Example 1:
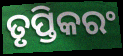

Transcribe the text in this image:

ତୃପ୍ତିକରଂ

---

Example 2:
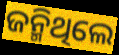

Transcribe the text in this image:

ଜନ୍ମିଥିଲେ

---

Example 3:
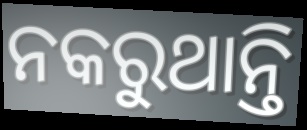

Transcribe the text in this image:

ନକରୁଥାନ୍ତି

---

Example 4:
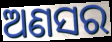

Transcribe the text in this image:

ଅଣସର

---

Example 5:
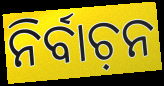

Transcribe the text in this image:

ନିର୍ବାଚ଼ନ